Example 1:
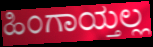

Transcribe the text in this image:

ಹಿಂಗಾಯ್ತಲ್ಲ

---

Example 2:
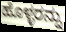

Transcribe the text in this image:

ಹೊಳ್ಳರನ್ನು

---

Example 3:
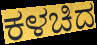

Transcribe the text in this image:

ಕಳಚಿದ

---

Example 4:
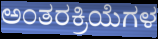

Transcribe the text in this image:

ಅಂತರಕ್ರಿಯೆಗಳ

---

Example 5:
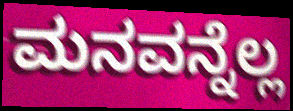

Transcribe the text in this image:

ಮನವನ್ನೆಲ್ಲ